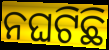
ନଘଟିଛି